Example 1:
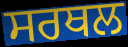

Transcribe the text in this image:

ਸਰਥਲ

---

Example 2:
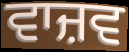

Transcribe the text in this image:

ਵਾਜ਼ਵ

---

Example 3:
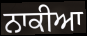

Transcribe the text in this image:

ਨਾਕੀਆ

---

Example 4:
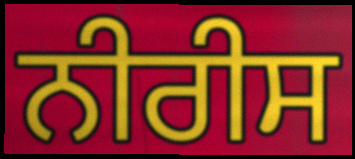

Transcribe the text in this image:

ਨੀਰੀਸ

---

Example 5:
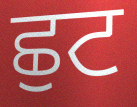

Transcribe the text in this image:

ਛੁਟ